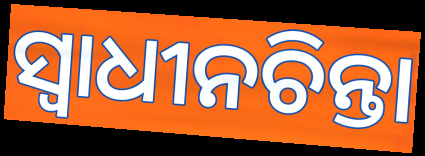
ସ୍ୱାଧୀନଚିନ୍ତା